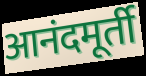
आनंदमूर्ती